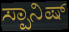
ಸ್ಪಾನಿಷ್